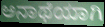
ಅನಾಥೆಯಾಗಿ